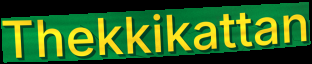
Thekkikattan